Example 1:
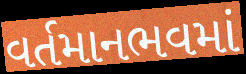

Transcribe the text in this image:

વર્તમાનભવમાં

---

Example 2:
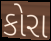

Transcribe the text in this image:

કોરા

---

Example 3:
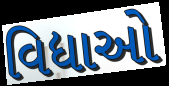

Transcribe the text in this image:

વિદ્યાઓ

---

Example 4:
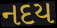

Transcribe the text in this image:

નદય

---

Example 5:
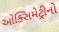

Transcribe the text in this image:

ઓક્સિમેટ્રીનો